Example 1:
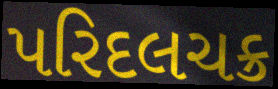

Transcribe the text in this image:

પરિદલચક્ર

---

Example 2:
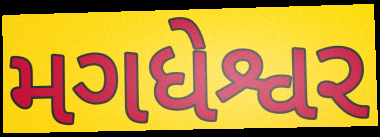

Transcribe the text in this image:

મગધેશ્વર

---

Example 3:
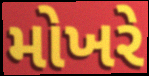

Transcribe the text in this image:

મોખરે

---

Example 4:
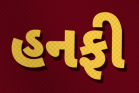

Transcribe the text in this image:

હનફી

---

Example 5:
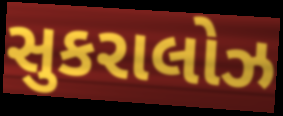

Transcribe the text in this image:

સુકરાલોઝ